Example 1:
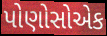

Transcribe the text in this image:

પોણોસોએક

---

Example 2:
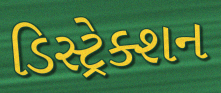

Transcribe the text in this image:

ડિસ્ટ્રેક્શન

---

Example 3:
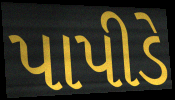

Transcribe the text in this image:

પાપીડે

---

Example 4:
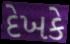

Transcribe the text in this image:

દેખકે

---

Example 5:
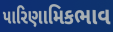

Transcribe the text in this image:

પારિણામિકભાવ